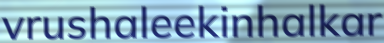
vrushaleekinhalkar